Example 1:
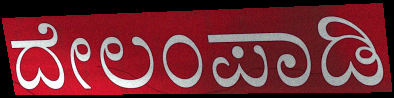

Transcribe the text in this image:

ದೇಲಂಪಾಡಿ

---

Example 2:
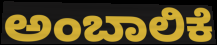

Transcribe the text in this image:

ಅಂಬಾಲಿಕೆ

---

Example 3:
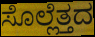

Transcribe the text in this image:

ಸೊಲ್ಲೆತ್ತದ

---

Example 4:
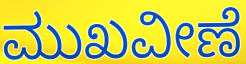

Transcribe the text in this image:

ಮುಖವೀಣೆ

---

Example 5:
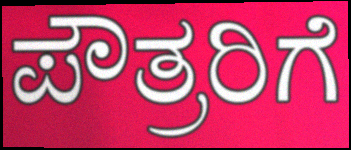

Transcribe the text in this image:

ಪೌತ್ರರಿಗೆ